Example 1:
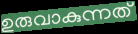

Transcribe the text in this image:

ഉരുവാകുന്നത്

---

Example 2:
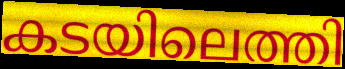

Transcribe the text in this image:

കടയിലെത്തി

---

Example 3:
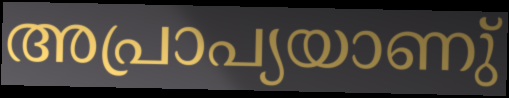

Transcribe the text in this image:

അപ്രാപ്യയാണു്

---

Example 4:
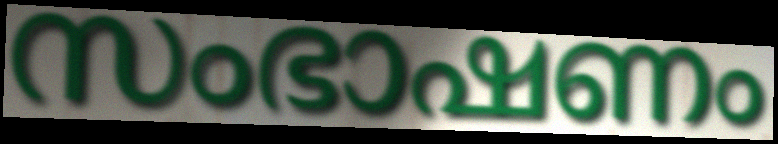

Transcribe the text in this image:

സംഭാഷണം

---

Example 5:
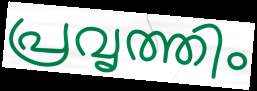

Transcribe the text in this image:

പ്രവൃത്തിം